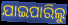
ଯାଇପାରିଲୁ